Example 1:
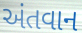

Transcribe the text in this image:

અંતવાન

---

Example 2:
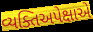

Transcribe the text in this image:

વ્યક્તિઅપેક્ષાએ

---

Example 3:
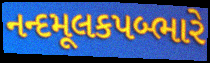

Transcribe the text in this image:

નન્દમૂલકપબ્ભારે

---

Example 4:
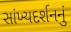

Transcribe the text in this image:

સાંખ્યદર્શનનું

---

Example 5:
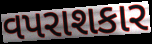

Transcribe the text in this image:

વપરાશકાર